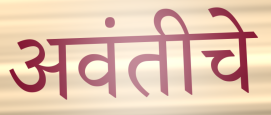
अवंतीचे